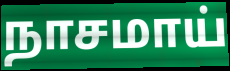
நாசமாய்